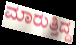
ಮಾರುತ್ತಿದ್ದ